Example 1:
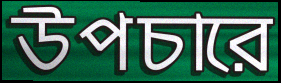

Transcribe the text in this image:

উপচারে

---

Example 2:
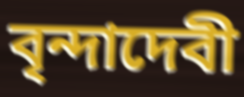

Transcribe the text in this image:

বৃন্দাদেবী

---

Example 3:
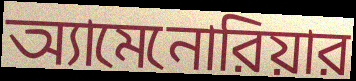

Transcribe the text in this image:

অ্যামেনোরিয়ার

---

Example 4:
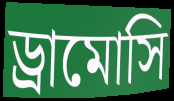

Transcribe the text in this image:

ড্রামোসি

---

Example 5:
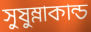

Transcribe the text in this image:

সুষুম্নাকান্ড